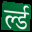
र्ल्ड